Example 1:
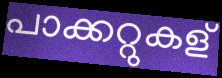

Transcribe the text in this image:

പാക്കറ്റുകള്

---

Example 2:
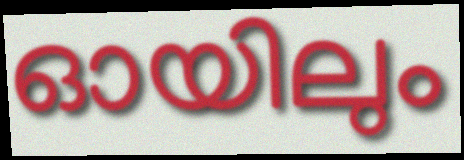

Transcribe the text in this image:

ഓയിലും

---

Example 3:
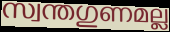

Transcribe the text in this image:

സ്വന്തഗുണമല്ല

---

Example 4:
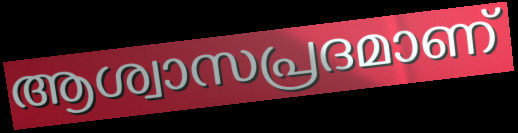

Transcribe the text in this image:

ആശ്വാസപ്രദമാണ്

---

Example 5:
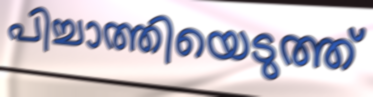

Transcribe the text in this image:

പിച്ചാത്തിയെടുത്ത്